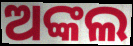
ଅଙ୍କଲ